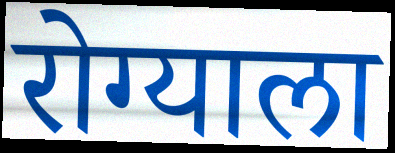
रोग्याला